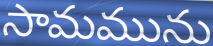
సామమును